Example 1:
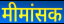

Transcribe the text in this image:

मीमांसक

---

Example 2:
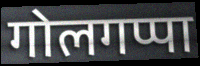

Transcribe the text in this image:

गोलगप्पा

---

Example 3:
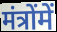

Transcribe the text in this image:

मंत्रोंमें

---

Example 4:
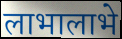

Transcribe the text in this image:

लाभालाभे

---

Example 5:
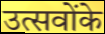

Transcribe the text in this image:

उत्सवोंके